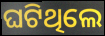
ଘଟିଥିଲେ